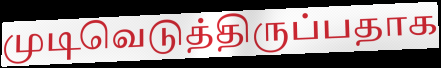
முடிவெடுத்திருப்பதாக